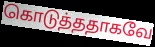
கொடுத்ததாகவே